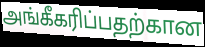
அங்கீகரிப்பதற்கான